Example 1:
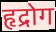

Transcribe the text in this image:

हृद्रोग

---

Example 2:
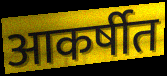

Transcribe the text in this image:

आकर्षीत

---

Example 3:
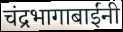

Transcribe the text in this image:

चंद्रभागाबाईंनी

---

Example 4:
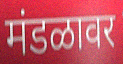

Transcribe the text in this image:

मंडळावर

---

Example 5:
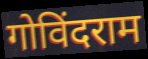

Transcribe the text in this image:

गोविंदराम